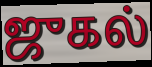
ஜுகல்